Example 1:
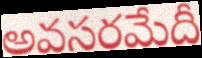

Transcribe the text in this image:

అవసరమేదీ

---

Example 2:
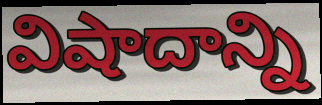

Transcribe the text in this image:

విషాదాన్ని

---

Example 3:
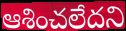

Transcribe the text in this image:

ఆశించలేదని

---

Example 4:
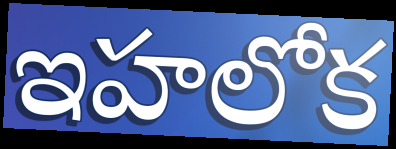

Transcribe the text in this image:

ఇహలోక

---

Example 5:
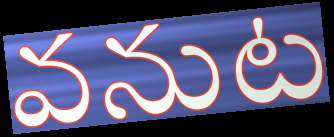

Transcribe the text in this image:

వనుట